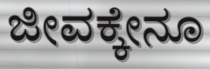
ಜೀವಕ್ಕೇನೂ